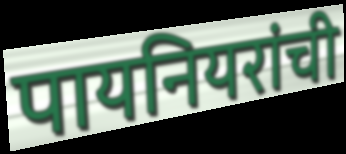
पायनियरांची